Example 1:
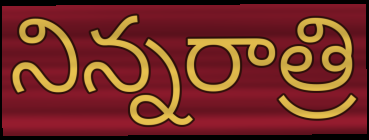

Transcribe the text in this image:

నిన్నరాత్రి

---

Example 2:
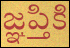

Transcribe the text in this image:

జ్ఞప్తికి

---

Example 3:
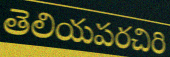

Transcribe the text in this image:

తెలియపరచిరి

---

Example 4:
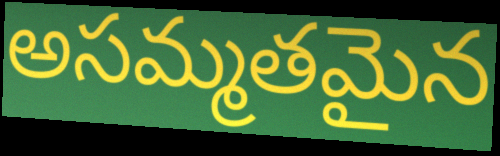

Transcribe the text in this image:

అసమ్మతమైన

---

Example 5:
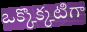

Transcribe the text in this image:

ఒక్కొక్కటిగా